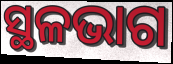
ସ୍ଥଳଭାଗ